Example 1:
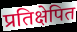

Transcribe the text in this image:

प्रतिक्षेपित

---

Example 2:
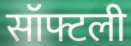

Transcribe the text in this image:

सॉफ्टली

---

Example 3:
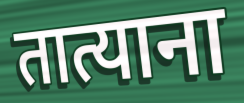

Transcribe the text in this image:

तात्याना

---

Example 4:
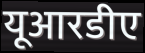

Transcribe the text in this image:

यूआरडीए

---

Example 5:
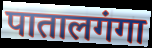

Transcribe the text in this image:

पातालगंगा